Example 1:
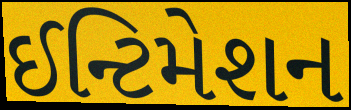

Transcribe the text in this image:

ઈન્ટિમેશન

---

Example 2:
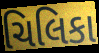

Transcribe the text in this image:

ચિલિકા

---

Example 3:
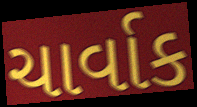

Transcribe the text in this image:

ચાર્વાક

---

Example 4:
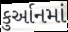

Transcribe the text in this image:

કુર્આનમાં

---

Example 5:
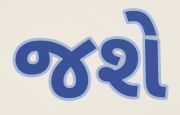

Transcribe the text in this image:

જશે